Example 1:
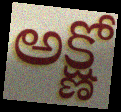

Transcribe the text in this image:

అక్ష్ణో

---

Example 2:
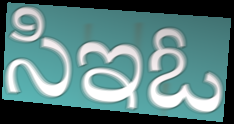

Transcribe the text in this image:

సిఇఓ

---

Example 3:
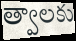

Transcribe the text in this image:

త్వాలకు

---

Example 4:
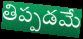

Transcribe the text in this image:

తిప్పడమే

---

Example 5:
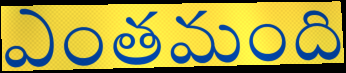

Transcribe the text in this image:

ఎంతమంది